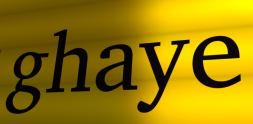
ghaye